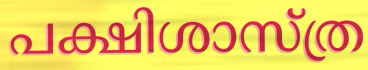
പക്ഷിശാസ്ത്ര